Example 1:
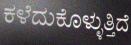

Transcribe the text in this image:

ಕಳೆದುಕೊಳ್ಳುತ್ತಿದೆ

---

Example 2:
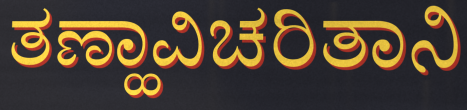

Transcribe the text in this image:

ತಣ್ಹಾವಿಚರಿತಾನಿ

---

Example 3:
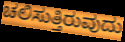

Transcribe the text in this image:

ಚಲಿಸುತ್ತಿರುವುದು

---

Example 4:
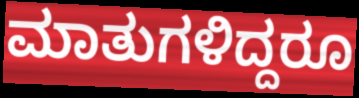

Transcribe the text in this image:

ಮಾತುಗಳಿದ್ದರೂ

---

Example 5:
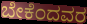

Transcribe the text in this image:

ಬೇಕೆಂದವರ